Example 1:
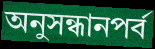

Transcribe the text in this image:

অনুসন্ধানপর্ব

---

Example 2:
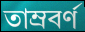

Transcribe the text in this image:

তাম্রবর্ণ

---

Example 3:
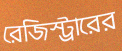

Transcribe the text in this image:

রেজিস্ট্রারের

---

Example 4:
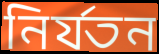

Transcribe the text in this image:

নির্যতন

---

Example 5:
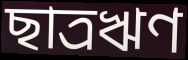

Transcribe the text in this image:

ছাত্রঋণ